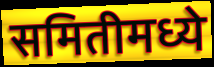
समितीमध्ये